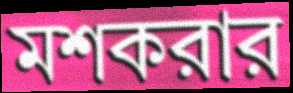
মশকরার